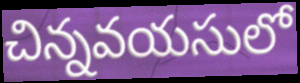
చిన్నవయసులో